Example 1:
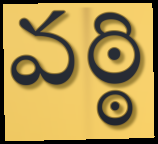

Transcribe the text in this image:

వఠ్ఠి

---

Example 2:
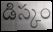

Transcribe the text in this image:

డిస్కం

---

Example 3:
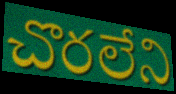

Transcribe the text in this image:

చొరలేని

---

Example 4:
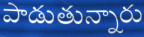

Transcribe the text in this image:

పాడుతున్నారు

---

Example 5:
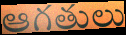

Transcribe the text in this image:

ఆగతులు